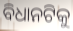
ବିଧାନଟିକୁ